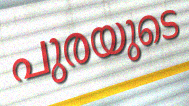
പുരയുടെ